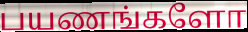
பயணங்களோ